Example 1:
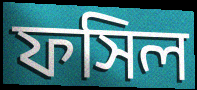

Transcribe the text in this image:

ফসিল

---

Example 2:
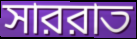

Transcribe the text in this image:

সাররাত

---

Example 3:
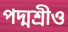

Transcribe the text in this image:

পদ্মশ্রীও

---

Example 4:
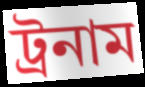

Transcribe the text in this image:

ট্রনাম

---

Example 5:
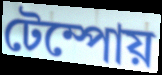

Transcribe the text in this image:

টেম্পোয়